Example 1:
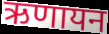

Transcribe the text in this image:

ऋणायन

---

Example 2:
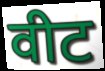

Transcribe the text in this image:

वीट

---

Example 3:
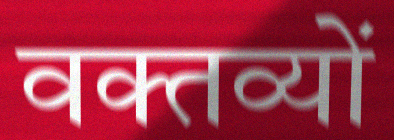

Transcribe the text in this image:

वक्‍तव्‍यों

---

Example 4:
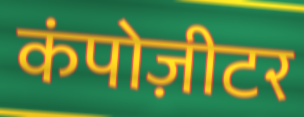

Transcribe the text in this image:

कंपोज़ीटर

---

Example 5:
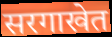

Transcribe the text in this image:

सरगाखेत